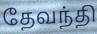
தேவந்தி